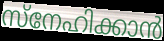
സ്നേഹിക്കാൻ